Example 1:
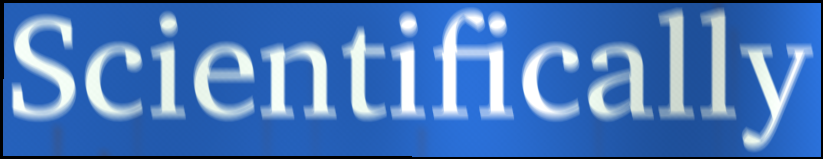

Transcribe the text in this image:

Scientifically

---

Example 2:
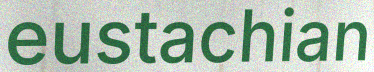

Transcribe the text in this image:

eustachian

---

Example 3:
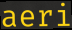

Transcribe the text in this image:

aeri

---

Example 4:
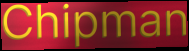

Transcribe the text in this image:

Chipman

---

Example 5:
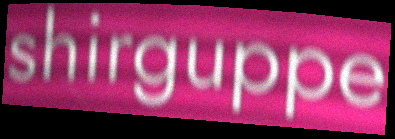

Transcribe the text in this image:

shirguppe